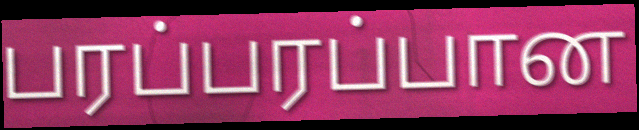
பரப்பரப்பான